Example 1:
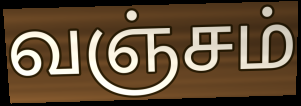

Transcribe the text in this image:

வஞ்சம்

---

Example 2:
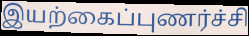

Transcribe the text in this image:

இயற்கைப்புணர்ச்சி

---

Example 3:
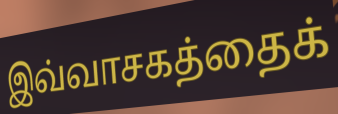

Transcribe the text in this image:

இவ்வாசகத்தைக்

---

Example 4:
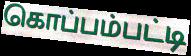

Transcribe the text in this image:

கொப்பம்பட்டி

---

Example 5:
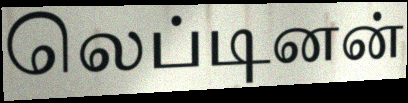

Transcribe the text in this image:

லெப்டினன்